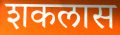
शकलास